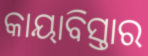
କାୟାବିସ୍ତାର